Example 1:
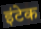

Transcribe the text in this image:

इंटेक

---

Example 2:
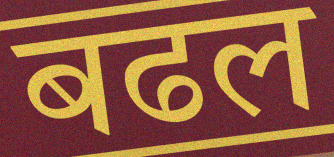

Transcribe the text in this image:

बढल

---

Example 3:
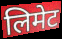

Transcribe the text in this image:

लिमेट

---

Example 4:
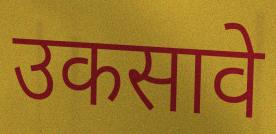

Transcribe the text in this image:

उकसावे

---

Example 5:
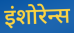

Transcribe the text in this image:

इंशोरेन्स